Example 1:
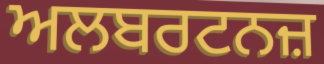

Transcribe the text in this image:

ਅਲਬਰਟਨਜ਼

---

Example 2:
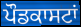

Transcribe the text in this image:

ਪੌਡਕਾਸਟਾਂ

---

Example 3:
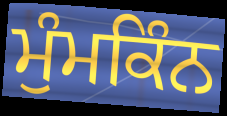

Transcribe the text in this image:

ਮੁੰਮਕਿੰਨ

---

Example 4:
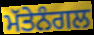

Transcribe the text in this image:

ਮੱਤੇਨੰਗਲ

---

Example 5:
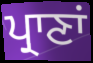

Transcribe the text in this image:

ਪ੍ਰਾਣਾਂ